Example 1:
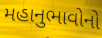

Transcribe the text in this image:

મહાનુભાવોનો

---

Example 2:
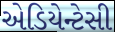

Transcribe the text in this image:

એડિયેન્ટેસી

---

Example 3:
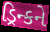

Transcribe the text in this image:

ડ્રિન્કને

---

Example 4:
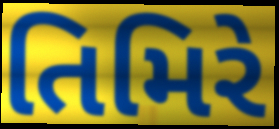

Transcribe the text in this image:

તિમિરે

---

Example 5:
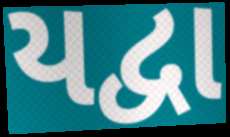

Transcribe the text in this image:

યદ્વા